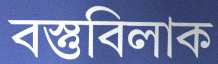
বস্তুবিলাক